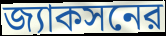
জ্যাকসনের